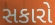
સકારો